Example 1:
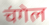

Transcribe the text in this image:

चंगेल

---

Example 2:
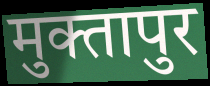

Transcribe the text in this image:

मुक्तापुर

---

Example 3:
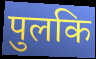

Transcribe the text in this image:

पुलकि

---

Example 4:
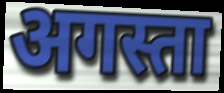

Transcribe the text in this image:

अगस्ता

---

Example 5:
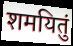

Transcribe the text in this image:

शमयितुं